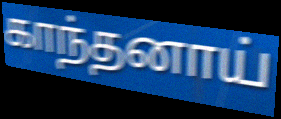
காந்தனாய்